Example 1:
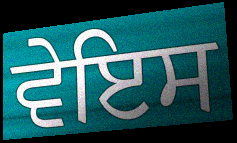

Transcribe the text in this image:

ਵੇਇਸ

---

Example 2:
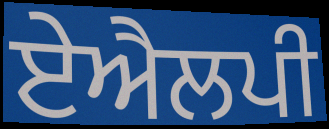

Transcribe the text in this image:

ਏਐਲਪੀ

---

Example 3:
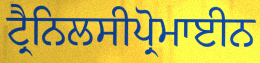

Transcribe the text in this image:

ਟ੍ਰੈਨਿਲਸੀਪ੍ਰੋਮਾਈਨ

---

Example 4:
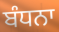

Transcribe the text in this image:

ਬੰਧਨਾ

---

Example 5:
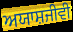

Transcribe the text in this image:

ਅਯਾਸ਼ਜੀਵੀ